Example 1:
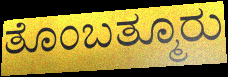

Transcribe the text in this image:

ತೊಂಬತ್ಮೂರು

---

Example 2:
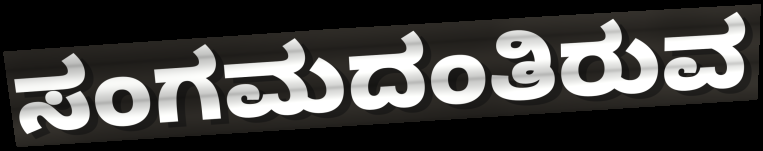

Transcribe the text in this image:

ಸಂಗಮದಂತಿರುವ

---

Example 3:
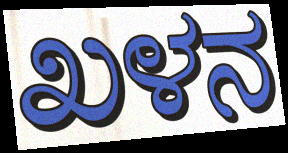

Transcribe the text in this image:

ಖಳನ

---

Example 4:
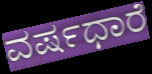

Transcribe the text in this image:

ವರ್ಷಧಾರೆ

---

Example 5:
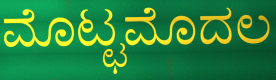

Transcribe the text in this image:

ಮೊಟ್ಟಮೊದಲ